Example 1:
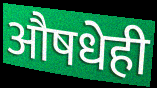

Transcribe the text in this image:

औषधेही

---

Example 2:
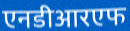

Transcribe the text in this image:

एनडीआरएफ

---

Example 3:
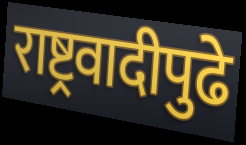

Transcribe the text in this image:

राष्ट्रवादीपुढे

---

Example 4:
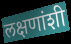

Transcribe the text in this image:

लक्षणांशी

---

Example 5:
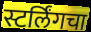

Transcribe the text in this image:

स्टर्लिंगचा